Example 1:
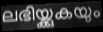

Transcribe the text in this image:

ലഭിയ്ക്കുകയും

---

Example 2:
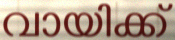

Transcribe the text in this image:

വായിക്ക്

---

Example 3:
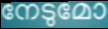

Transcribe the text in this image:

നേടുമോ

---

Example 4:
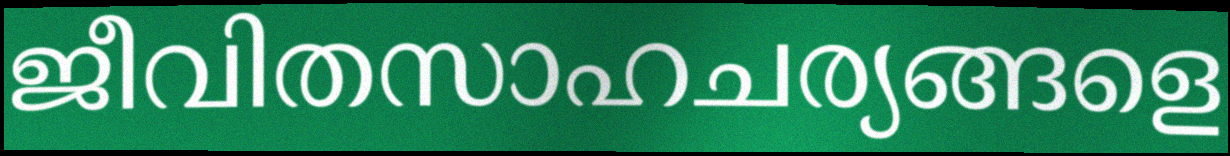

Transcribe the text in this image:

ജീവിതസാഹചര്യങ്ങളെ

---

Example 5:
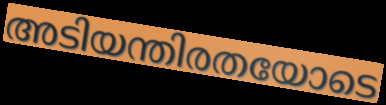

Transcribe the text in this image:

അടിയന്തിരതയോടെ